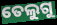
ତେଲୁଗୁ